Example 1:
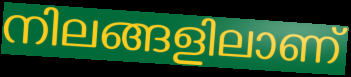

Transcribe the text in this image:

നിലങ്ങളിലാണ്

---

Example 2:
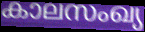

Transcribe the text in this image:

കാലസംഖ്യ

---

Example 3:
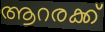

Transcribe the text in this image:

ആറരക്ക്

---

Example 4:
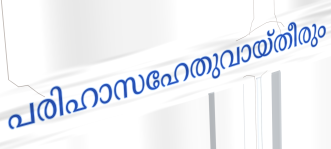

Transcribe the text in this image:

പരിഹാസഹേതുവായ്തീരും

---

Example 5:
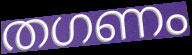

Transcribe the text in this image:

തഗണം